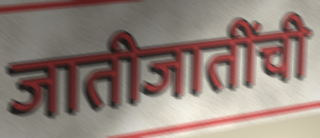
जातीजातींची